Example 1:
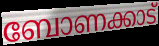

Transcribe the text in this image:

ബോണക്കാട്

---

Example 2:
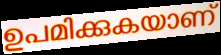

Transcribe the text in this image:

ഉപമിക്കുകയാണ്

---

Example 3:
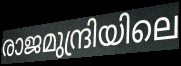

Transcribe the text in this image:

രാജമുന്ദ്രിയിലെ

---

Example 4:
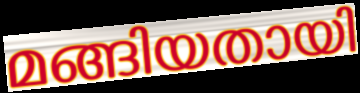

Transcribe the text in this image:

മങ്ങിയതായി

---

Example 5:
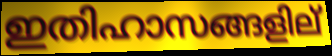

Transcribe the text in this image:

ഇതിഹാസങ്ങളില്